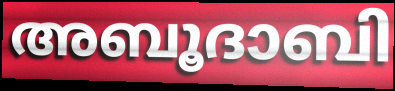
അബൂദാബി